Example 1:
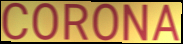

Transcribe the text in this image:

CORONA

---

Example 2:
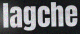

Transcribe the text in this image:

lagche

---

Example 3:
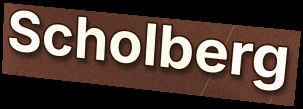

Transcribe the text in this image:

Scholberg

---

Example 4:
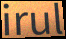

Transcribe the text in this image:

irul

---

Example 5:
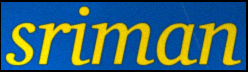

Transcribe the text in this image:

sriman